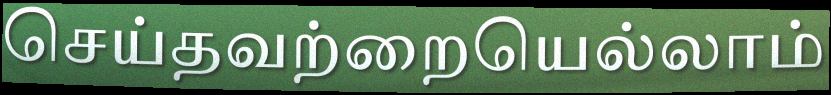
செய்தவற்றையெல்லாம்